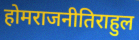
होमराजनीतिराहुल